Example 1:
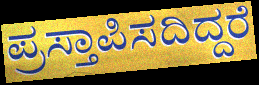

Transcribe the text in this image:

ಪ್ರಸ್ತಾಪಿಸದಿದ್ದರೆ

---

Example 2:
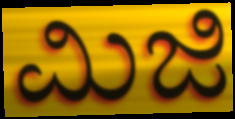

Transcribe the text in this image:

ಮಿಜಿ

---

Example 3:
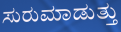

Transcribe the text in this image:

ಸುರುಮಾಡುತ್ತು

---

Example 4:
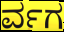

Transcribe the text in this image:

ರ್ವಗ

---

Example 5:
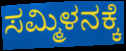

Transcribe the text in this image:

ಸಮ್ಮಿಳನಕ್ಕೆ